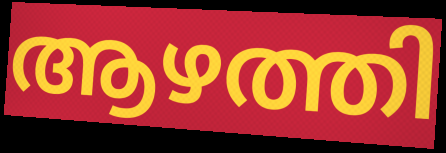
ആഴത്തി